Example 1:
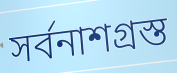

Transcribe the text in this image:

সর্বনাশগ্রস্ত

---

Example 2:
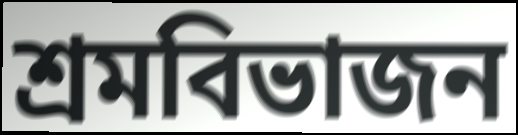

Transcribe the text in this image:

শ্রমবিভাজন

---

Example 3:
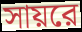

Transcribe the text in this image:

সায়রে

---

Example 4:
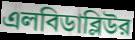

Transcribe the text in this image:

এলবিডাব্লিউর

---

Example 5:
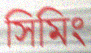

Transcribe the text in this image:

সিমিং